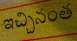
ఇచ్చినంత